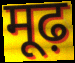
मूढ़